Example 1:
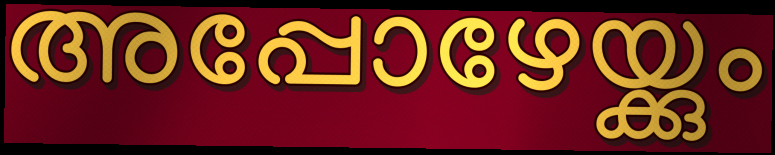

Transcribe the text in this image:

അപ്പോഴേയ്ക്കും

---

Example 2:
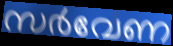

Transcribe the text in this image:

സർവേണ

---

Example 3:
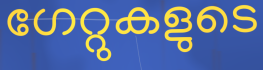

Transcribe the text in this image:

ഗേറ്റുകളുടെ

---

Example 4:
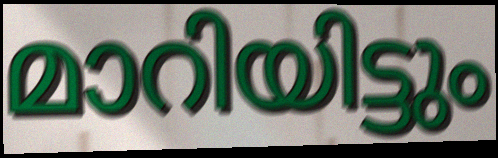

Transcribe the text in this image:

മാറിയിട്ടും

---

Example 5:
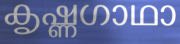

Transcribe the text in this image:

കൃഷ്ണഗാഥാ